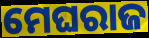
ମେଘରାଜ